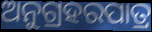
ଅନୁଗ୍ରହରପାତ୍ର